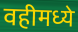
वहीमध्ये